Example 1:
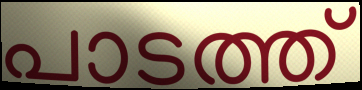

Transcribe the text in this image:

പാടത്ത്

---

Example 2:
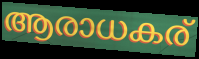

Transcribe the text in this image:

ആരാധകര്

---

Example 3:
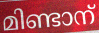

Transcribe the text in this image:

മിണ്ടാന്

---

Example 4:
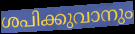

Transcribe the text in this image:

ശപിക്കുവാനും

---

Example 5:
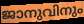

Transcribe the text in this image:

ജാനുവിനും